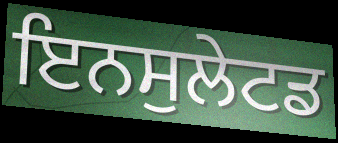
ਇਨਸੁਲੇਟਡ